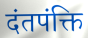
दंतपंक्ति